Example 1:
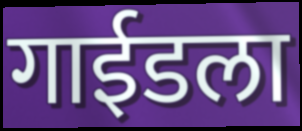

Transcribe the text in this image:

गाईडला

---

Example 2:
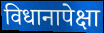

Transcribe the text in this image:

विधानापेक्षा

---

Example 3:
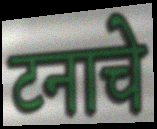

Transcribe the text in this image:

टनाचे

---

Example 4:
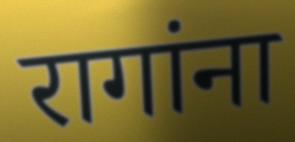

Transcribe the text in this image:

रागांना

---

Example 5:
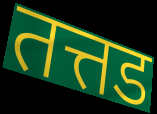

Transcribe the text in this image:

तत्तड